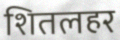
शितलहर